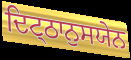
ਦਿਟ੍ਠਾਨੁਸਯੇਨ